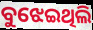
ବୁଝେଇଥିଲି